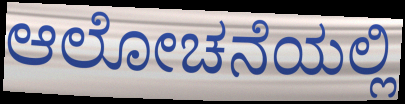
ಆಲೋಚನೆಯಲ್ಲಿ